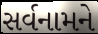
સર્વનામને